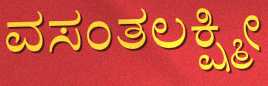
ವಸಂತಲಕ್ಷ್ಮೀ